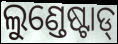
ଲୁଣ୍ଡେଷ୍ଟାଡ୍